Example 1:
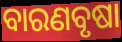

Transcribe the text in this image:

ବାରଣବୃଷା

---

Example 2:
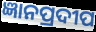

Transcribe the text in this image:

ଜ୍ଞାନପ୍ରଦୀପ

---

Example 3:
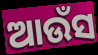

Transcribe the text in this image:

ଆଉଁସ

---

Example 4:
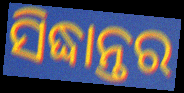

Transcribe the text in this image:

ସିଦ୍ଧାନ୍ତର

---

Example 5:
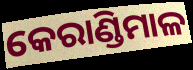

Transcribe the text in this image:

କେରାଣ୍ଡିମାଳ